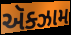
ઍક્ઝામ